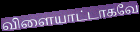
விளையாட்டாகவே